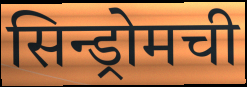
सिन्ड्रोमची